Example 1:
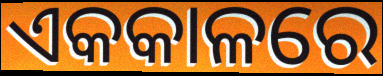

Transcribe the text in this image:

ଏକକାଳରେ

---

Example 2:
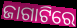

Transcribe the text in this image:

ଜାଗାଟିରେ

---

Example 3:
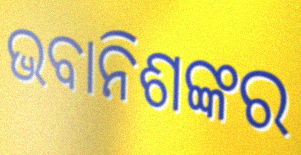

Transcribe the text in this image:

ଭବାନିଶଙ୍କର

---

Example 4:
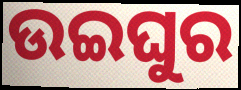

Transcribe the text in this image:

ଉଇଘୁର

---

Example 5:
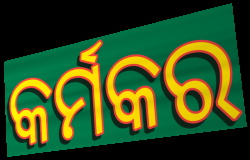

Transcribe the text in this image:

କର୍ମକର